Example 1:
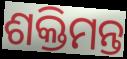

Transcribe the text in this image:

ଶକ୍ତିମନ୍ତ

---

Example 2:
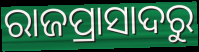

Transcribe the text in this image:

ରାଜପ୍ରାସାଦରୁ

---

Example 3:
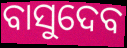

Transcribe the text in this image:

ବାସୁଦେବ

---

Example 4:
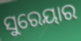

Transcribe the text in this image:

ସୁରେୟାର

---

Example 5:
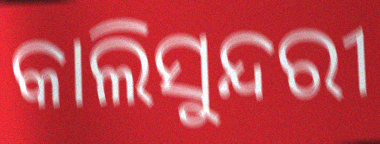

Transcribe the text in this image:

କାଲିସୁନ୍ଦରୀ